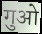
गुओ